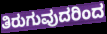
ತಿರುಗುವುದರಿಂದ